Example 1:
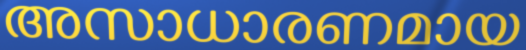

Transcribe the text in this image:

അസാധാരണമായ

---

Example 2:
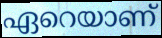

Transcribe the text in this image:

ഏറെയാണ്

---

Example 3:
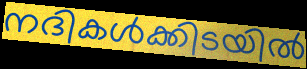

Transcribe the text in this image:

നദികൾക്കിടയിൽ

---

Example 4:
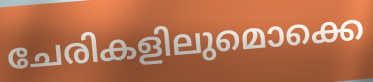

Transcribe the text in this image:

ചേരികളിലുമൊക്കെ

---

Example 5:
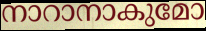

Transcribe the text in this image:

നാറാനാകുമോ